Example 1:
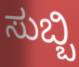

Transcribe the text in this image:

ಸುಬ್ಬಿ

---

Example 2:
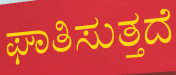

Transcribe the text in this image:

ಘಾತಿಸುತ್ತದೆ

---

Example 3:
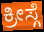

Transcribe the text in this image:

ಕ್ರೀಸ್ಗೆ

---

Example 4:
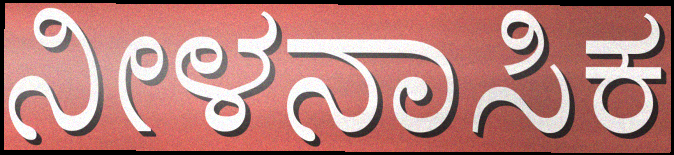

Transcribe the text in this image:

ನೀಳನಾಸಿಕ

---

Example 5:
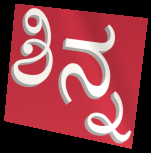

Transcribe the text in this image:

ಶಿನ್ನ